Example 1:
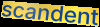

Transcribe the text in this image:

scandent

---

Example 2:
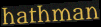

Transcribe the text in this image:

hathman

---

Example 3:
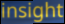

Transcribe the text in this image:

insight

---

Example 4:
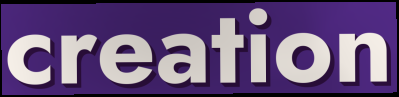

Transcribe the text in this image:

creation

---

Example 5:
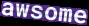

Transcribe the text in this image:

awsome